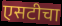
एसटीचा